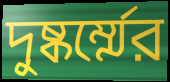
দুষ্কর্ম্মের